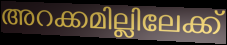
അറക്കമില്ലിലേക്ക്